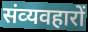
संव्‍यवहारों